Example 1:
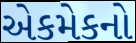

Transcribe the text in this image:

એકમેકનો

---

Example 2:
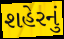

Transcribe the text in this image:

શહેરનું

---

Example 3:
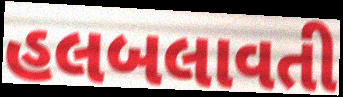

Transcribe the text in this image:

હલબલાવતી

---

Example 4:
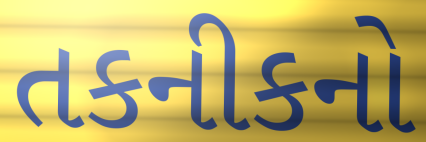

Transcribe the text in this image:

તકનીકનો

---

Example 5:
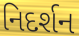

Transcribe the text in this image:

નિદર્શન